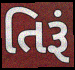
તિરૂં